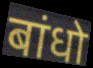
बांधो